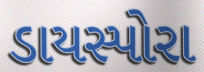
ડાયસ્પોરા